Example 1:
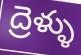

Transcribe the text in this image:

ద్రెళ్ళు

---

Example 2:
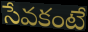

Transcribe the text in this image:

సేవకంటే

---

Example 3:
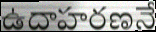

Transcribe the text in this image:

ఉదాహరణనే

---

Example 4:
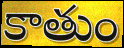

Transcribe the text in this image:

కాతుం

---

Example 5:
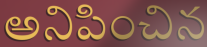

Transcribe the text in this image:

అనిపించిన